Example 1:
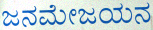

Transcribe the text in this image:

ಜನಮೇಜಯನ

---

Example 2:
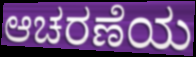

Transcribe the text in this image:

ಆಚರಣೆಯ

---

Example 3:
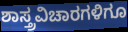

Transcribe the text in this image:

ಶಾಸ್ತ್ರವಿಚಾರಗಳಿಗೂ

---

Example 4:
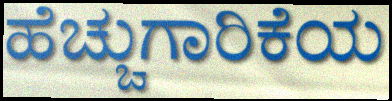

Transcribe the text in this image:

ಹೆಚ್ಚುಗಾರಿಕೆಯ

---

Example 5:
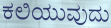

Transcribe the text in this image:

ಕಲಿಯುವುದು